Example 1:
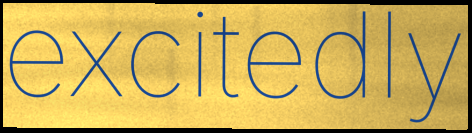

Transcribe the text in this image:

excitedly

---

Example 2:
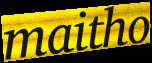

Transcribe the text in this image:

maitho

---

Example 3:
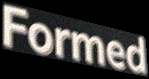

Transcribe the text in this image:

Formed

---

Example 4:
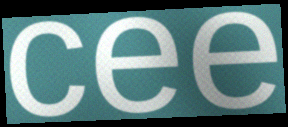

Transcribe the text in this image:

cee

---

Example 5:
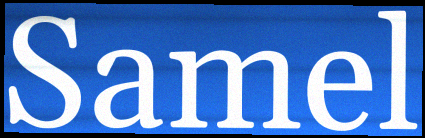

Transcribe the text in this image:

Samel